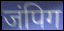
जंपिग